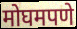
मोघमपणे